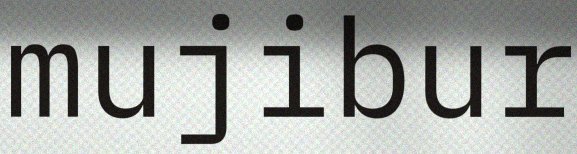
mujibur